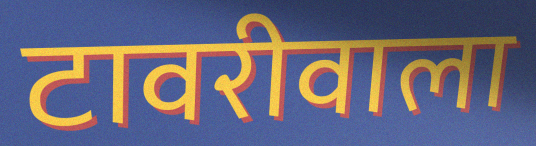
टावरीवाला